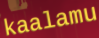
kaalamu